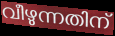
വീഴുന്നതിന്